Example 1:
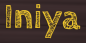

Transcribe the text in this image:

Iniya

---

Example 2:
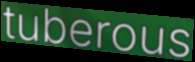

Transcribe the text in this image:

tuberous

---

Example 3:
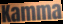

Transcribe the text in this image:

Kamma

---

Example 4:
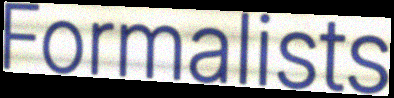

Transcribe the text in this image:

Formalists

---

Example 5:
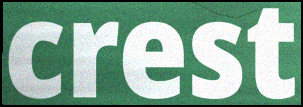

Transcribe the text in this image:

crest